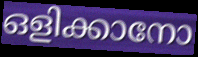
ഒളിക്കാനോ